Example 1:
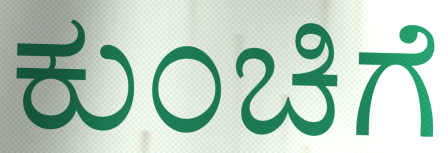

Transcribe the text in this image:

ಕುಂಚಿಗೆ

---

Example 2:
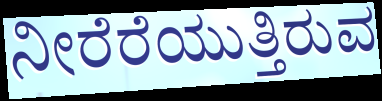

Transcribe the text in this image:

ನೀರೆರೆಯುತ್ತಿರುವ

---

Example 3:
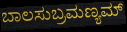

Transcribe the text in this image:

ಬಾಲಸುಬ್ರಮಣ್ಯಮ್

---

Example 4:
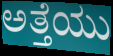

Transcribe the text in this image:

ಅತ್ತೆಯು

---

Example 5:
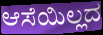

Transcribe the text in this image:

ಆಸೆಯಿಲ್ಲದ